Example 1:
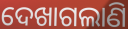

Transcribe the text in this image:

ଦେଖାଗଲାଣି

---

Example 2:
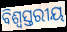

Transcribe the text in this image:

ବିଶ୍ବସ୍ତରୀୟ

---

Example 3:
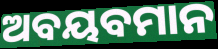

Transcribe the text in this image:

ଅବୟବମାନ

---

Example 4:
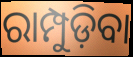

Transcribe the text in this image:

ରାମ୍ପୁଡ଼ିବା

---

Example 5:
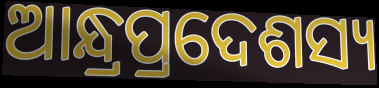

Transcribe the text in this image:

ଆନ୍ଧ୍ରପ୍ରଦେଶସ୍ୟ